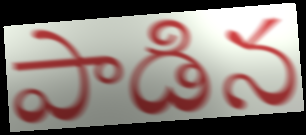
పాడిన